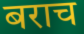
बराच